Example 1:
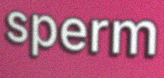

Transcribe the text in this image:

sperm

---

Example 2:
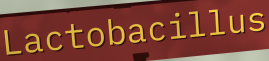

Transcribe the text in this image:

Lactobacillus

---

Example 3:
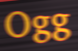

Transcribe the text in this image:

Ogg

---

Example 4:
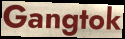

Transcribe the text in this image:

Gangtok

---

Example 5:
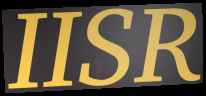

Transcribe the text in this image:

IISR